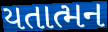
યતાત્મન